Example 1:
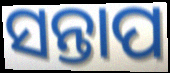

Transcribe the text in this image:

ସନ୍ତାପ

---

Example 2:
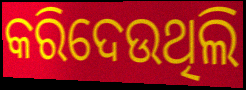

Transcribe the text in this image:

କରିଦେଉଥିଲି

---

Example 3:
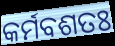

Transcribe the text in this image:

କର୍ମବଶତଃ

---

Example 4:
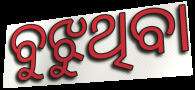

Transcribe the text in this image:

ବୁଝୁଥିବା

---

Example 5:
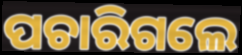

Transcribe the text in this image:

ପଚାରିଗଲେ